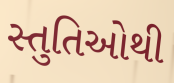
સ્તુતિઓથી